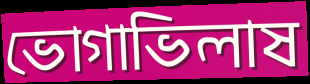
ভোগাভিলাষ